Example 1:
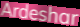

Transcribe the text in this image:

Ardeshar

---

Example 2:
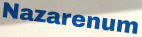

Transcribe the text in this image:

Nazarenum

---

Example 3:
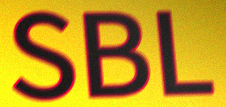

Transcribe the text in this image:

SBL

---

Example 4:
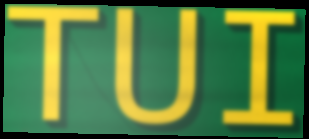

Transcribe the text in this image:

TUI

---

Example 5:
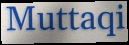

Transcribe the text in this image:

Muttaqi